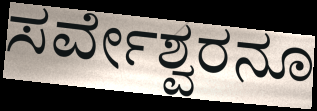
ಸರ್ವೇಶ್ವರನೂ